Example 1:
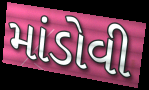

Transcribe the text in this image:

માંડોવી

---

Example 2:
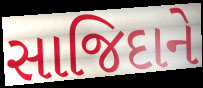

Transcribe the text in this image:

સાજિદાને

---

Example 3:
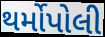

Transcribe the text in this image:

થર્મોપોલી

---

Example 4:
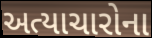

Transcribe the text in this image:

અત્યાચારોના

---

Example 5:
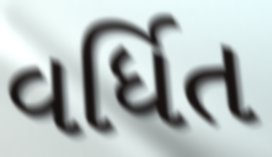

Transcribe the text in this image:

વર્ધિત